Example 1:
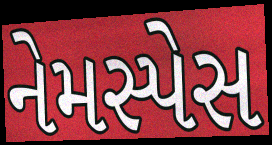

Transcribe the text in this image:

નેમસ્પેસ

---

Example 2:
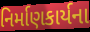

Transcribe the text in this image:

નિર્માણકાર્યના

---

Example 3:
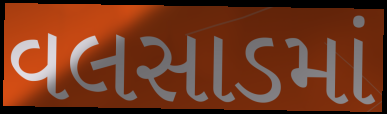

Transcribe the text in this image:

વલસાડમાં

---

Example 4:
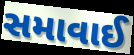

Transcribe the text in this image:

સમાવાઈ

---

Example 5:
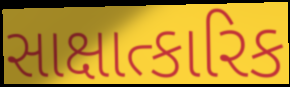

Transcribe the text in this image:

સાક્ષાત્કારિક